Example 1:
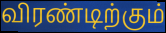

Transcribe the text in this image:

விரண்டிற்கும்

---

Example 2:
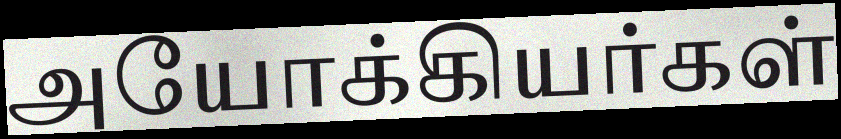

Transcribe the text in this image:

அயோக்கியர்கள்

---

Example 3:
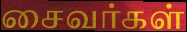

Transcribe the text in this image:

சைவர்கள்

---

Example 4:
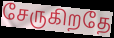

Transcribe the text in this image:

சேருகிறதே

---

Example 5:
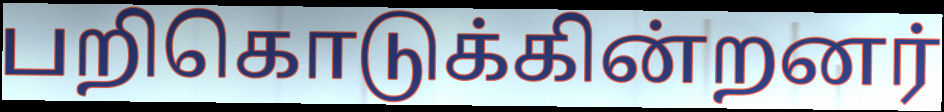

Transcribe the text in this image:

பறிகொடுக்கின்றனர்